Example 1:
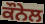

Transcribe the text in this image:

ਕੌਨੇਲ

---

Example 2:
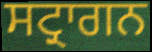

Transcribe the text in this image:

ਸਟ੍ਰਾਗਨ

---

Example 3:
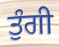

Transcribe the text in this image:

ਤੁੰਗੀ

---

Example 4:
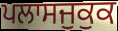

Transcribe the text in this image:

ਪਲਾਸਜੁਕੁਕ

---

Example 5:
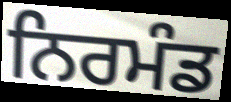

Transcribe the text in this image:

ਨਿਰਮੰਡ